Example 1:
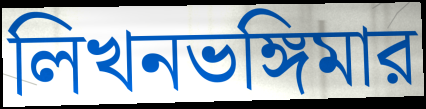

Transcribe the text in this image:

লিখনভঙ্গিমার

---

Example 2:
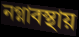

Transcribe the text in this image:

নগ্নাবস্থায়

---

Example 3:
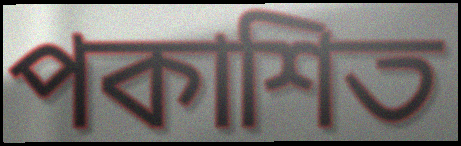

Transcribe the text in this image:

পকাশিত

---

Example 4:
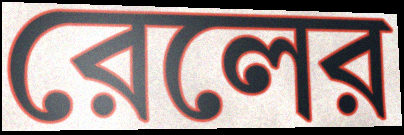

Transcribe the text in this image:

রেলের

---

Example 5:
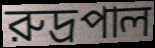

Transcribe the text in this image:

রুদ্রপাল